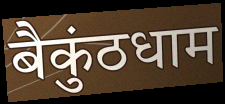
बैकुंठधाम